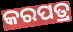
କରପତ୍ର